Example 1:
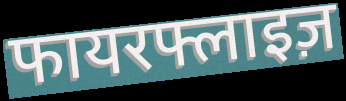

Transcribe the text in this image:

फायरफ्लाइज़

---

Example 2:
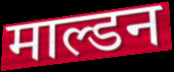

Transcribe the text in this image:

माल्डन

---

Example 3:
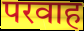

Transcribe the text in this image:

परवाह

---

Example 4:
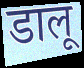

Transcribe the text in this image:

डालू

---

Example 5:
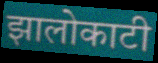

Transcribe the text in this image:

झालोकाटी